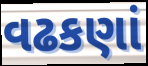
વઢકણાં